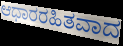
ಆಧಾರರಹಿತವಾದ